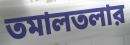
তমালতলার